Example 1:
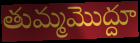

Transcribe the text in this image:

తుమ్మమొద్దూ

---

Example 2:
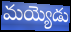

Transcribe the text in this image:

మయ్యెడు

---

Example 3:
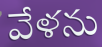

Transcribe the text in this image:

వేళను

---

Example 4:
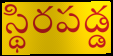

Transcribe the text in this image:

స్థిరపడ్డ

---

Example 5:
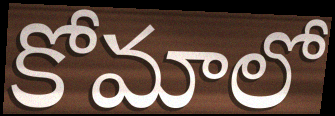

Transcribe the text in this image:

కోమాలో